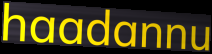
haadannu